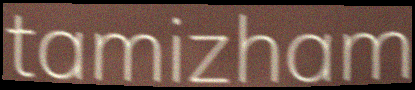
tamizham